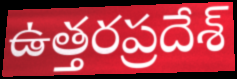
ఉత్తరప్రదేశ్